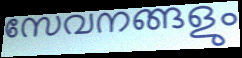
സേവനങ്ങളും